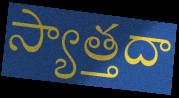
స్యాత్తదా